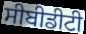
ਸੀਬੀਡੀਟੀ